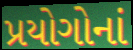
પ્રયોગોનાં